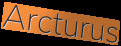
Arcturus